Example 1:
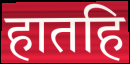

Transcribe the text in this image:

हातहि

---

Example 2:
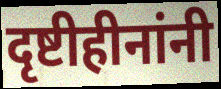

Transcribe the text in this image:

दृष्टीहीनांनी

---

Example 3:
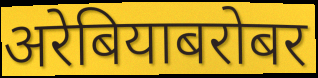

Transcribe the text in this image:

अरेबियाबरोबर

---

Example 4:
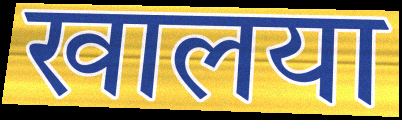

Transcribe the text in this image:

खालया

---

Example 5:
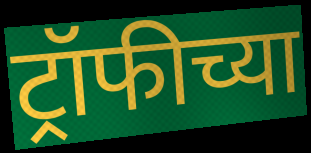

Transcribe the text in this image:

ट्रॉफीच्या